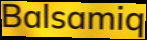
Balsamiq